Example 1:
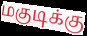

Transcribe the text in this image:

மகுடிக்கு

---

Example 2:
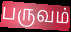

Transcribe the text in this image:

பருவம்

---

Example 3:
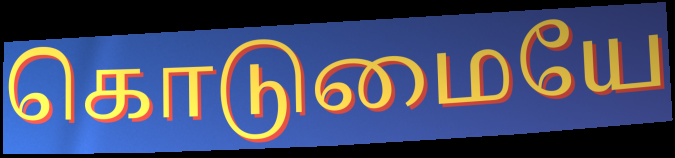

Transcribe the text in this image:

கொடுமையே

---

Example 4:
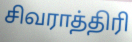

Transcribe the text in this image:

சிவராத்திரி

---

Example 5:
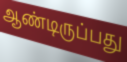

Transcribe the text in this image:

ஆண்டிருப்பது